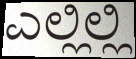
ಎಲ್ಲಿಲ್ಲಿ